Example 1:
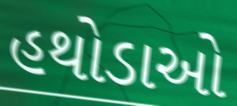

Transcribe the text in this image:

હથોડાઓ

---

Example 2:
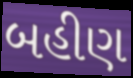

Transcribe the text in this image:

બહીણ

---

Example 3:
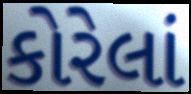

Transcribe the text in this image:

કોરેલાં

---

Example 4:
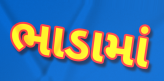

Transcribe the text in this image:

ભાડામાં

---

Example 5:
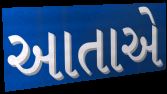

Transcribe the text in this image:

આતાએ